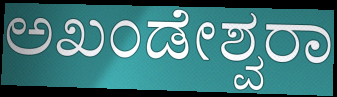
ಅಖಂಡೇಶ್ವರಾ